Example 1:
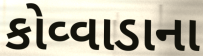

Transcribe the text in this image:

કોવ્વાડાના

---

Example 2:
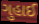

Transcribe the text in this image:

ગુહાઈ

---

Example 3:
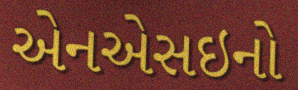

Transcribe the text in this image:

એનએસઇનો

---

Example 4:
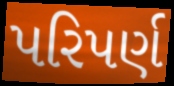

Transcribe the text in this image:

પરિપર્ણ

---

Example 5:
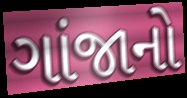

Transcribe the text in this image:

ગાંજાનો